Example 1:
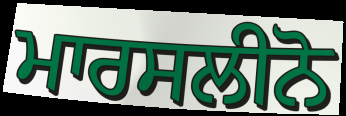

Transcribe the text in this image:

ਮਾਰਸਲੀਨੋ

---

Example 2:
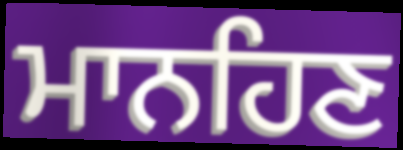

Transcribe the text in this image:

ਮਾਨਹਿਣ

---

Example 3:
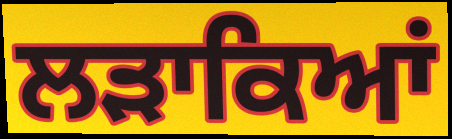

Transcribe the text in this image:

ਲੜਾਕਿਆਂ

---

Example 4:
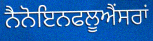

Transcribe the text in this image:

ਨੈਨੋਇਨਫਲੂਐਂਸਰਾਂ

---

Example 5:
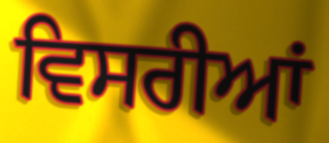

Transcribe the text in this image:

ਵਿਸਰੀਆਂ